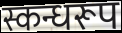
स्कन्धरूप